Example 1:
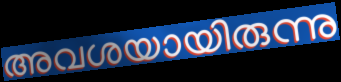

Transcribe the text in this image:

അവശയായിരുന്നു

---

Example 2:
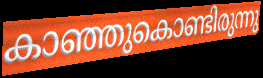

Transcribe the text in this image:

കാഞ്ഞുകൊണ്ടിരുന്നു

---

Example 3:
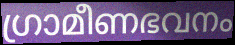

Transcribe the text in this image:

ഗ്രാമീണഭവനം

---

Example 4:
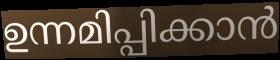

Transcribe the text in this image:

ഉന്നമിപ്പിക്കാൻ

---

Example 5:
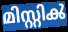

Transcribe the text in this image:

മിസ്റ്റിൿ